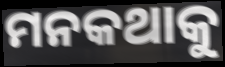
ମନକଥାକୁ